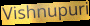
Vishnupuri